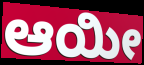
ಆಯೀ